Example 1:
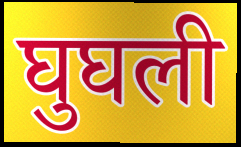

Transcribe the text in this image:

घुघली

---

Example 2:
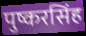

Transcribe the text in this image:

पुष्करसिंह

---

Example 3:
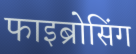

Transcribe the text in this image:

फाइब्रोसिंग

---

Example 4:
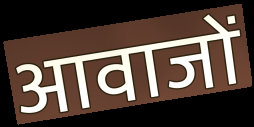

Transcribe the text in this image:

आवाजों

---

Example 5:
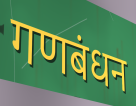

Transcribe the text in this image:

गणबंधन